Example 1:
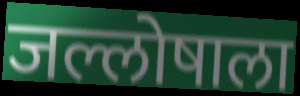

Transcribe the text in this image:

जल्लोषाला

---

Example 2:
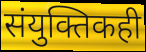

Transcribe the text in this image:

संयुक्तिकही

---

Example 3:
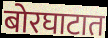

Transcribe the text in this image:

बोरघाटात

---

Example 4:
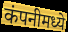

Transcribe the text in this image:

कंपनीमध्ये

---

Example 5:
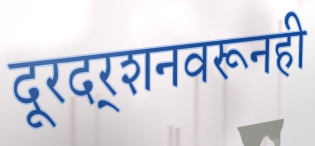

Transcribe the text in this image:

दूरदर्शनवरूनही